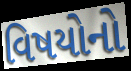
વિષયોનો